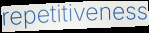
repetitiveness